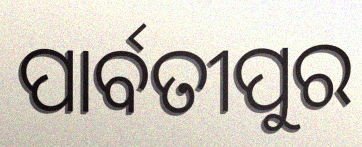
ପାର୍ବତୀପୁର